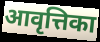
आवृत्तिका